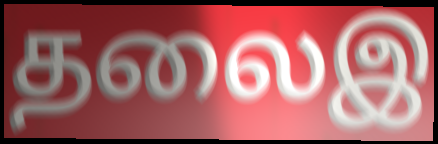
தலைஇ